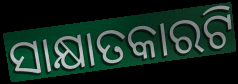
ସାକ୍ଷାତକାରଟି